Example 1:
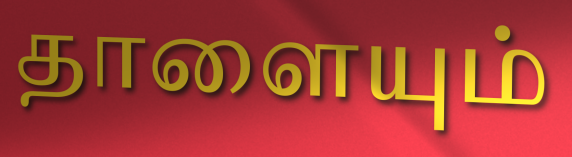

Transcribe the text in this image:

தாளையும்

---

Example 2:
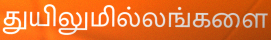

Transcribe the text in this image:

துயிலுமில்லங்களை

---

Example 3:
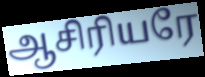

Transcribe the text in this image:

ஆசிரியரே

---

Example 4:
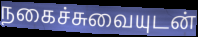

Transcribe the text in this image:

நகைச்சுவையுடன்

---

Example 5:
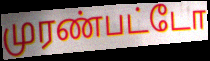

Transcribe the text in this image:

முரண்பட்டோ